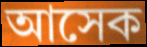
আসেক